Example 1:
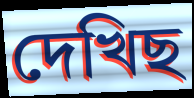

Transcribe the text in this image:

দেখিছ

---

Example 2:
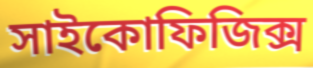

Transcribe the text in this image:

সাইকোফিজিক্স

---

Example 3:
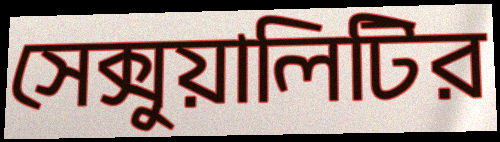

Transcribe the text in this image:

সেক্সুয়ালিটির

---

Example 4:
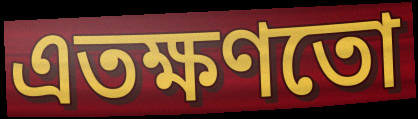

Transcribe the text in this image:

এতক্ষণতো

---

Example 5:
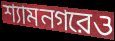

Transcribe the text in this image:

শ্যামনগরেও